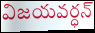
విజయవర్ధన్